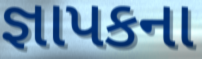
જ્ઞાપકના